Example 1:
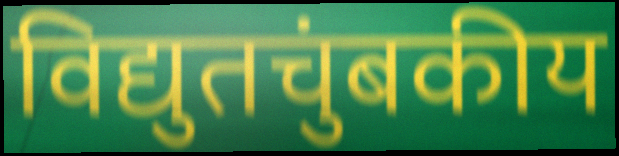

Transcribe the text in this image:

विद्युतचुंबकीय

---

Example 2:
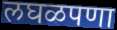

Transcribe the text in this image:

लघळपणा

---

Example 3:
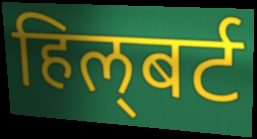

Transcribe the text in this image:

हिल्बर्ट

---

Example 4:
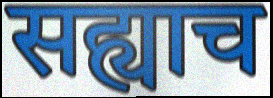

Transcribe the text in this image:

सह्याच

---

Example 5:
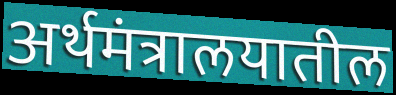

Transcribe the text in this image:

अर्थमंत्रालयातील